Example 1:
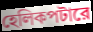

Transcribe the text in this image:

হেলিকপটারে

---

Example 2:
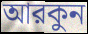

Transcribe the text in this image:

আরকুন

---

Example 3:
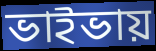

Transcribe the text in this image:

ভাইভায়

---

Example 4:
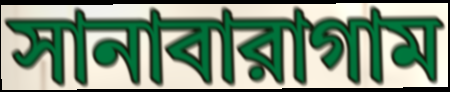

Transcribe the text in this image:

সানাবারাগাম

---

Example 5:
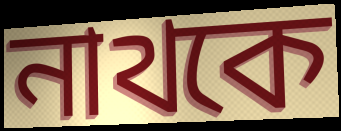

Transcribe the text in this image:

নাথকে